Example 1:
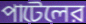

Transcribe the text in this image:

পাটেলের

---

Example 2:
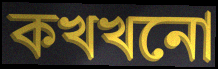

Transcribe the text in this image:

কখখনো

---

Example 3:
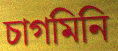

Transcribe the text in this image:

চাগমিনি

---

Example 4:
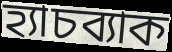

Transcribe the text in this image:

হ্যাচব্যাক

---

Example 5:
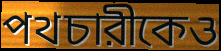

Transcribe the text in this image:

পথচারীকেও